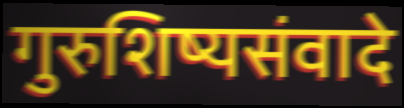
गुरुशिष्यसंवादे